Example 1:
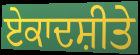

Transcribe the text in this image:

ਏਕਾਦਸ਼ੀਤੇ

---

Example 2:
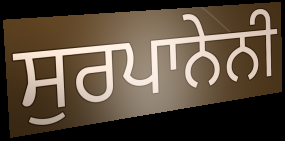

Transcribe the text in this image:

ਸੁਰਪਾਨੇਨੀ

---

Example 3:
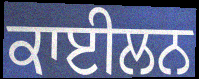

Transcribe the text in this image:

ਕਾਈਲਨ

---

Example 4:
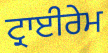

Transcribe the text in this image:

ਟ੍ਰਾਈਰੇਮ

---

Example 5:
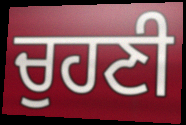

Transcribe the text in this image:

ਚੁਹਣੀ